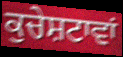
ਕੁਚੇਸ਼ਟਾਵਾਂ